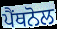
ਪੈਂਥਨੋਲ